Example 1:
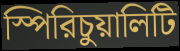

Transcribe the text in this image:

স্পিরিচুয়ালিটি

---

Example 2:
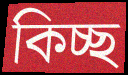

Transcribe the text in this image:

কিচ্ছ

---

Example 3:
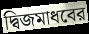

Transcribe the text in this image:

দ্বিজমাধবের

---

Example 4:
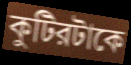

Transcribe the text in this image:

কুটিরটাকে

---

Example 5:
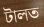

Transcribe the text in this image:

টালত